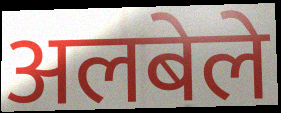
अलबेले